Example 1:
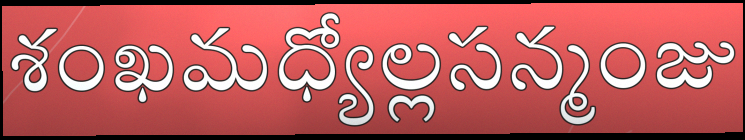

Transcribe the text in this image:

శంఖమధ్యోల్లసన్మంజు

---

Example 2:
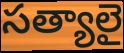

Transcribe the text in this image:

సత్యాలై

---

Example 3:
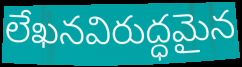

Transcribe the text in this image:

లేఖనవిరుద్ధమైన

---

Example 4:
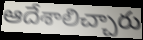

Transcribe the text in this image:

ఆదేశాలిచ్చారు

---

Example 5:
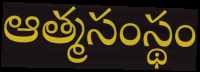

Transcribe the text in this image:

ఆత్మసంస్థం